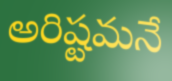
అరిష్టమనే